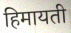
हिमायती